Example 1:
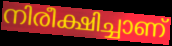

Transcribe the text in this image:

നിരീക്ഷിച്ചാണ്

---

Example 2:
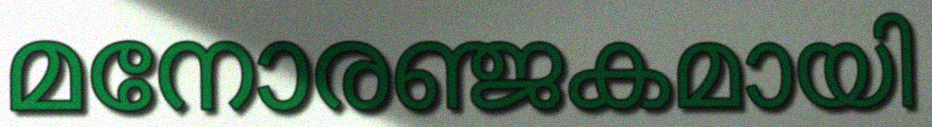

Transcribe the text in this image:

മനോരഞ്ജകമായി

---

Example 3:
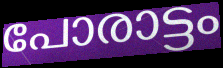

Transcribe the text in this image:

പോരാട്ടം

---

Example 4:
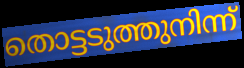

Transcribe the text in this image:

തൊട്ടടുത്തുനിന്ന്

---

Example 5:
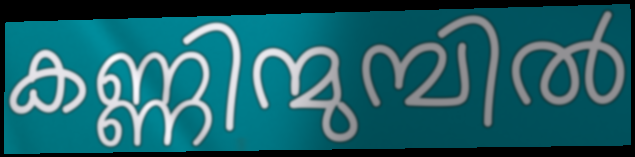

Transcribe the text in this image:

കണ്ണിന്മുമ്പിൽ